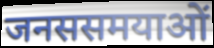
जनससमयाओं